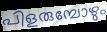
പിളരുമ്പോഴും